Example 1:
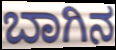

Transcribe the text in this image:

ಬಾಗಿನ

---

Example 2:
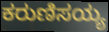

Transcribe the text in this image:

ಕರುಣಿಸಯ್ಯ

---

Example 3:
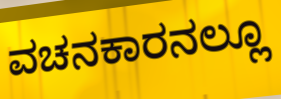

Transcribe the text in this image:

ವಚನಕಾರನಲ್ಲೂ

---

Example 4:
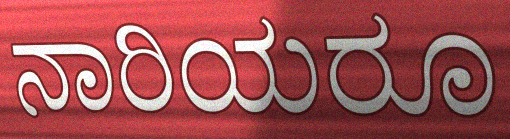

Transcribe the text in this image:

ನಾರಿಯರೂ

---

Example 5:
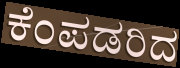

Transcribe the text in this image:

ಕೆಂಪಡರಿದ